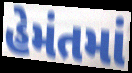
હેમંતમાં